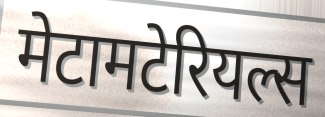
मेटामटेरियल्स